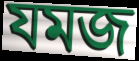
যমজ